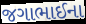
જગાભાઈના